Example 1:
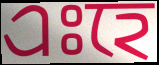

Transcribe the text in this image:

এঃহে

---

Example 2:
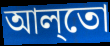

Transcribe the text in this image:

আল্‌তো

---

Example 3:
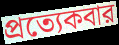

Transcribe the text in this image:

প্রত্যেকবার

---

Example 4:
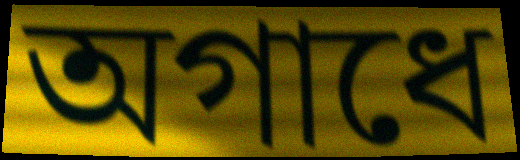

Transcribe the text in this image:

অগাধে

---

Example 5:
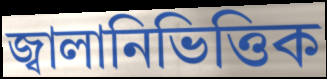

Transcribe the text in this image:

জ্বালানিভিত্তিক